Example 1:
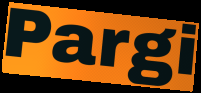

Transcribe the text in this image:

Pargi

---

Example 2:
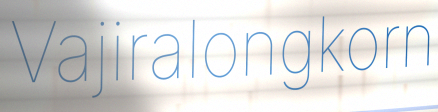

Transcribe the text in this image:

Vajiralongkorn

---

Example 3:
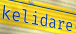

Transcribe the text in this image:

kelidare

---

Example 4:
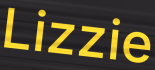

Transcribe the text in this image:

Lizzie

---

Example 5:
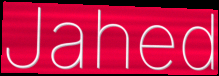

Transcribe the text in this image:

Jahed